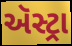
ઍસ્ટ્રા